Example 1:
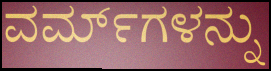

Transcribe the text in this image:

ವರ್ಮ್‌ಗಳನ್ನು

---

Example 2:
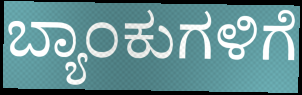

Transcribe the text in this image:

ಬ್ಯಾಂಕುಗಳಿಗೆ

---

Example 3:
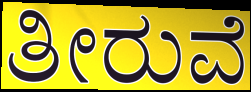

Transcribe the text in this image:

ತೀರುವೆ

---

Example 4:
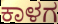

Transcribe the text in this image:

ಕಾಳಗ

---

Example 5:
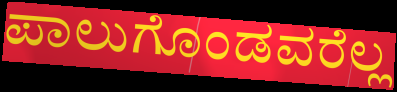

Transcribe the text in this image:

ಪಾಲುಗೊಂಡವರೆಲ್ಲ